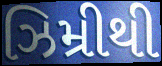
ઝિમ્રીથી